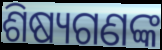
ଶିଷ୍ୟଗଣଙ୍କ